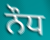
ਨੌਧ